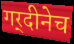
गर्दीनेच